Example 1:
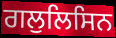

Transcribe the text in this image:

ਗਲੁਲਿਸਿਨ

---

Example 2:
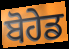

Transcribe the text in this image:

ਬੋਹੇਡ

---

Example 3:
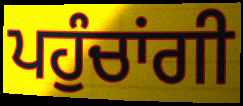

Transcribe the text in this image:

ਪਹੁੰਚਾਂਗੀ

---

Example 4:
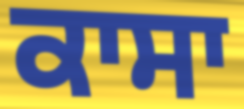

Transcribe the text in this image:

ਕਾਸਾ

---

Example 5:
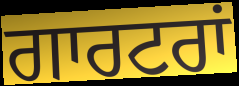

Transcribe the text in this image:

ਗਾਰਟਰਾਂ